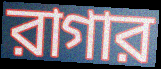
রাগার